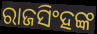
ରାଜସିଂହଙ୍କ